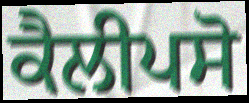
ਕੈਲੀਪਸੋ